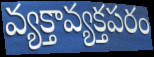
వ్యక్తావ్యక్తపరం